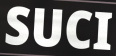
SUCI